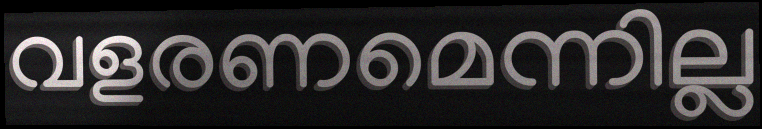
വളരണമെന്നില്ല